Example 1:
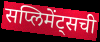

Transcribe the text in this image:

सप्लिमेंट्सची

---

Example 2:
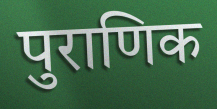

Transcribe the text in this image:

पुराणिक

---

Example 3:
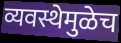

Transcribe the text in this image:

व्यवस्थेमुळेच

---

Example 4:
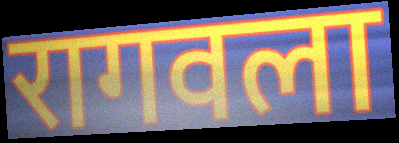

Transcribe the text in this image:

रागवला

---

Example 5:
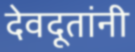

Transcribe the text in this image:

देवदूतांनी